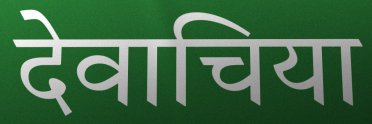
देवाचिया